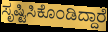
ಸೃಷ್ಟಿಸಿಕೊಂಡಿದ್ದಾರೆ